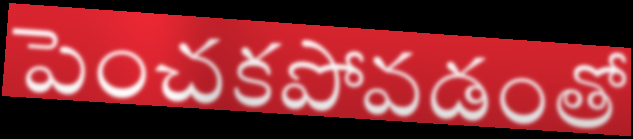
పెంచకపోవడంతో